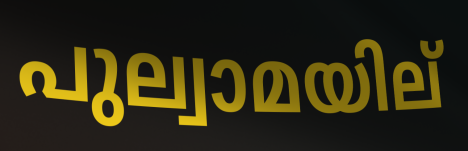
പുല്വാമയില്